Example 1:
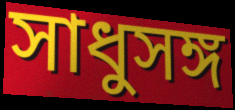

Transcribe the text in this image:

সাধুসঙ্গ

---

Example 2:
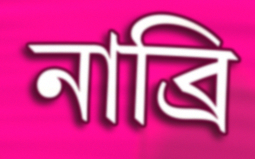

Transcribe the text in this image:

নাব্রি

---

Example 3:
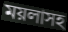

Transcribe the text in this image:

ময়লাসহ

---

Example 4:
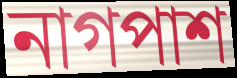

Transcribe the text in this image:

নাগপাশ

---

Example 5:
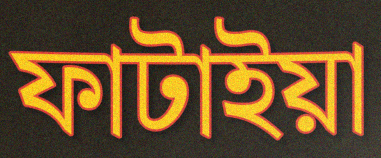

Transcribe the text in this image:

ফাটাইয়া